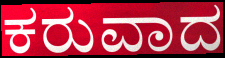
ಕರುವಾದ